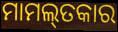
ମାମଲ୍‌ତକାର